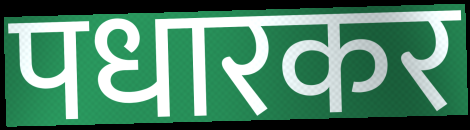
पधारकर